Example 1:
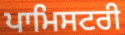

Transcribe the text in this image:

ਪਾਮਿਸਟਰੀ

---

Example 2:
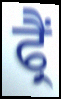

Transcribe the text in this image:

ਫ੍ਰੈਂ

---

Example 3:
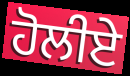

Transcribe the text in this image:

ਹੋਲੀਏ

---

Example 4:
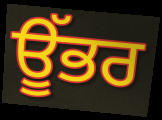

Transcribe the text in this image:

ਊੱਭਰ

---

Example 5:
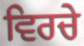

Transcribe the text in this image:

ਵਿਰਚੇ